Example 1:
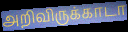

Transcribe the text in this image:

அறிவிருக்காடா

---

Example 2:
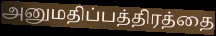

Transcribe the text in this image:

அனுமதிப்பத்திரத்தை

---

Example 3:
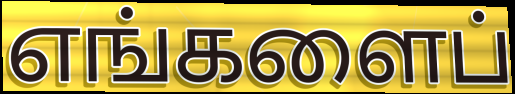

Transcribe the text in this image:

எங்களைப்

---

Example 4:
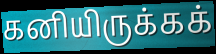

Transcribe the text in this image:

கனியிருக்கக்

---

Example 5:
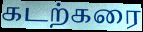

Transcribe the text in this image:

கடற்கரை